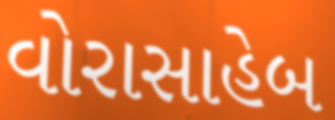
વોરાસાહેબ